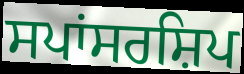
ਸਪਾਂਸਰਸ਼ਿਪ